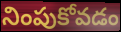
నింపుకోవడం